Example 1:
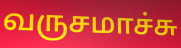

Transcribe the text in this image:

வருசமாச்சு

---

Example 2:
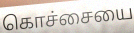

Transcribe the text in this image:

கொச்சையை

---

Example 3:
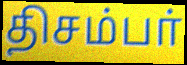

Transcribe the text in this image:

திசம்பர்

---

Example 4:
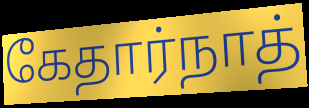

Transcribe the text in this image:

கேதார்நாத்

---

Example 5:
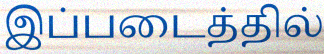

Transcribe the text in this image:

இப்படைத்தில்